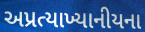
અપ્રત્યાખ્યાનીયના